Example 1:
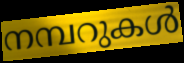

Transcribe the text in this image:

നമ്പറുകൾ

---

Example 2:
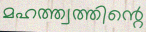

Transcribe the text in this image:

മഹത്ത്വത്തിന്റെ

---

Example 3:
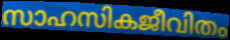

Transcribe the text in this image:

സാഹസികജീവിതം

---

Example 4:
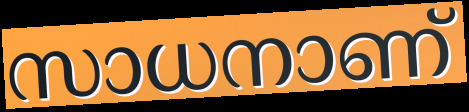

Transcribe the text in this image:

സാധനാണ്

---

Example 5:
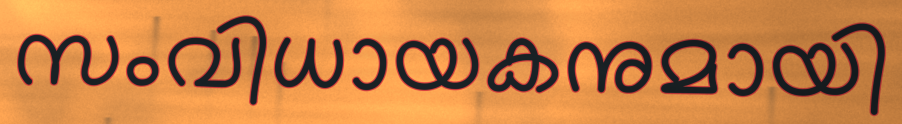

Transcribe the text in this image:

സംവിധായകനുമായി